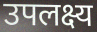
उपलक्ष्य